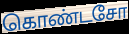
கொண்டசோ